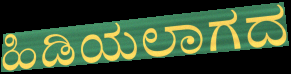
ಹಿಡಿಯಲಾಗದ